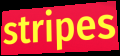
stripes